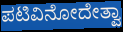
ಪಟಿವಿನೋದೇತ್ವಾ